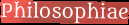
Philosophiae